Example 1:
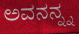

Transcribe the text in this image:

ಅವನನ್ನ್ನ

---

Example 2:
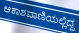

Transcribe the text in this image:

ಆಕಾಶವಾಣಿಯಲ್ಲಿದ್ದ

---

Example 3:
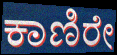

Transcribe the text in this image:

ಕಾಣಿರೇ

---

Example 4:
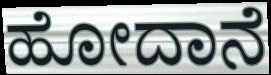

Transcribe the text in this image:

ಹೋದಾನೆ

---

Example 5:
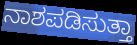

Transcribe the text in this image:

ನಾಶಪಡಿಸುತ್ತಾ